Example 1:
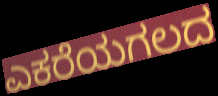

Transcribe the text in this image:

ಎಕರೆಯಗಲದ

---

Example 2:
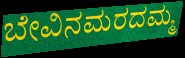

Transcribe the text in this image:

ಬೇವಿನಮರದಮ್ಮ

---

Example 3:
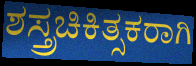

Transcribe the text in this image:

ಶಸ್ತ್ರಚಿಕಿತ್ಸಕರಾಗಿ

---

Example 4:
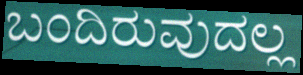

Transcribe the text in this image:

ಬಂದಿರುವುದಲ್ಲ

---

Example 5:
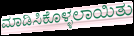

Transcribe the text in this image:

ಮಾಡಿಸಿಕೊಳ್ಳಲಾಯಿತು